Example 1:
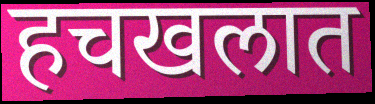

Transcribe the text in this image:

हचखलात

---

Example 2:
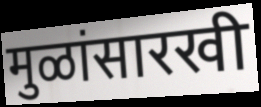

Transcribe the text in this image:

मुळांसारखी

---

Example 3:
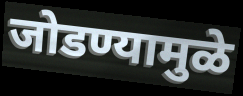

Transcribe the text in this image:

जोडण्यामुळे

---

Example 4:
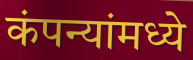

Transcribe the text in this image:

कंपन्यांमध्ये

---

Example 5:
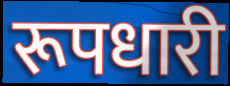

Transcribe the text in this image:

रूपधारी